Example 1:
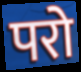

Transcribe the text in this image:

परो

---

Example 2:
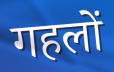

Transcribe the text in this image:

गहलों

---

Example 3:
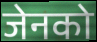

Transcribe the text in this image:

जेनको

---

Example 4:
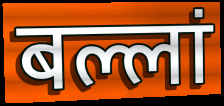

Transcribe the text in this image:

बल्लां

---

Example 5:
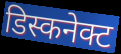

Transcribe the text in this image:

डिस्कनेक्ट